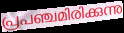
പ്രപഞ്ചമിരിക്കുന്നു